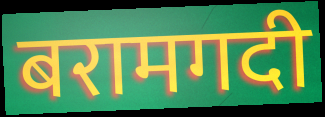
बरामगदी